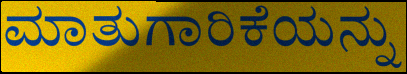
ಮಾತುಗಾರಿಕೆಯನ್ನು